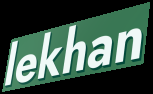
lekhan